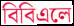
বিবিএলে